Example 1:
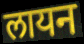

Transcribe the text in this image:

लायन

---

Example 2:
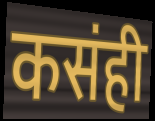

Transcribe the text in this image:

कसंही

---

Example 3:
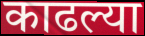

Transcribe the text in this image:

काढल्या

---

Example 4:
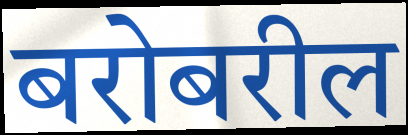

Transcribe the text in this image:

बरोबरील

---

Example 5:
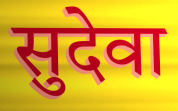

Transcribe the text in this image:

सुदेवा